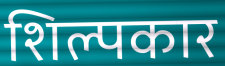
शिल्पकार